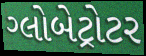
ગ્લોબેટ્રોટર